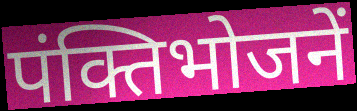
पंक्तिभोजनें